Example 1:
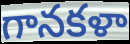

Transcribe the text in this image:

గానకళా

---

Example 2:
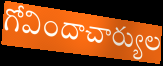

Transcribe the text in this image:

గోవిందాచార్యుల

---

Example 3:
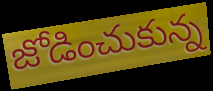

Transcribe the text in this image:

జోడించుకున్న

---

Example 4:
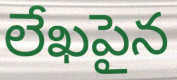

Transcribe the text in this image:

లేఖపైన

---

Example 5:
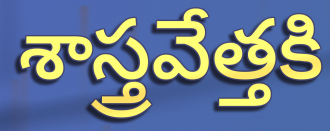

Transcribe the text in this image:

శాస్త్రవేత్తకి